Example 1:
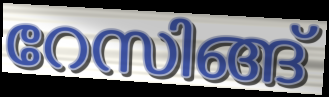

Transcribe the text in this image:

റേസിങ്ങ്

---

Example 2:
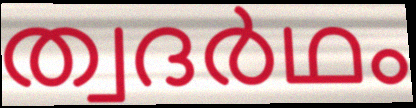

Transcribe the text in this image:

ത്വദർഥം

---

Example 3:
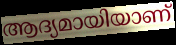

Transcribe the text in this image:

ആദ്യമായിയാണ്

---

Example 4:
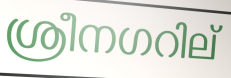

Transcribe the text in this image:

ശ്രീനഗറില്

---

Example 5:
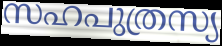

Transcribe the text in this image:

സഹപുത്രസ്യ